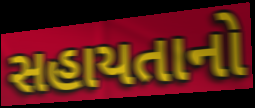
સહાયતાનો